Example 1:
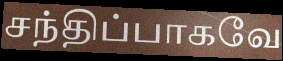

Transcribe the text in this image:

சந்திப்பாகவே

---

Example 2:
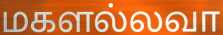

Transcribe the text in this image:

மகளல்லவா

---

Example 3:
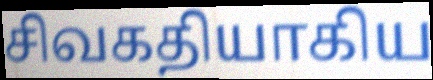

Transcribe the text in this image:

சிவகதியாகிய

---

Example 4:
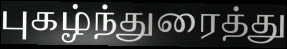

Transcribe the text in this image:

புகழ்ந்துரைத்து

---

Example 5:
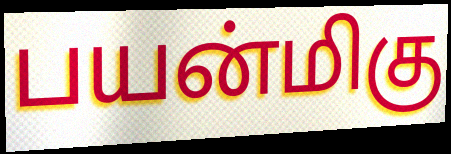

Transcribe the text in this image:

பயன்மிகு